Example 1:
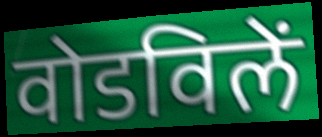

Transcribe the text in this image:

वोडविलें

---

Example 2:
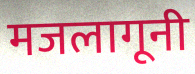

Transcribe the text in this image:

मजलागूनी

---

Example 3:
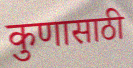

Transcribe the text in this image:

कुणासाठी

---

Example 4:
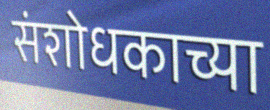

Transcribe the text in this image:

संशोधकाच्या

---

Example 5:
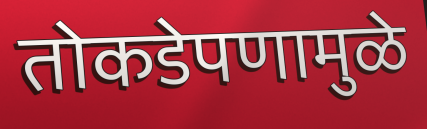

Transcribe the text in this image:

तोकडेपणामुळे